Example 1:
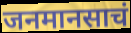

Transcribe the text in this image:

जनमानसाचं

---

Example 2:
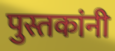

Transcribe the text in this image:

पुस्तकांनी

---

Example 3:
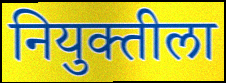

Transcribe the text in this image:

नियुक्तीला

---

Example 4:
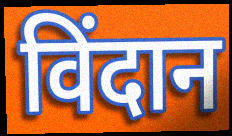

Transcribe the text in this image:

विंदान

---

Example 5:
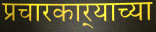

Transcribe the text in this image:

प्रचारकार्याच्या